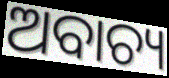
ଅବାଚ୍ୟ